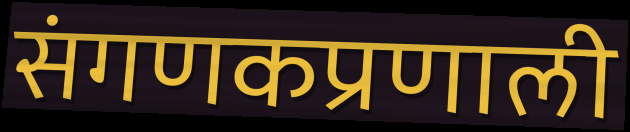
संगणकप्रणाली